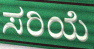
ಸರಿಯೆ